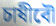
চাষীবৌ